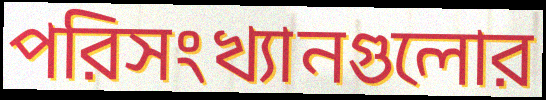
পরিসংখ্যানগুলোর